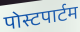
पोस्टपार्टम